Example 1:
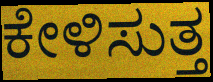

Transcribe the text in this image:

ಕೇಳಿಸುತ್ತ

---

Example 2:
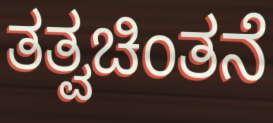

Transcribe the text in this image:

ತತ್ವಚಿಂತನೆ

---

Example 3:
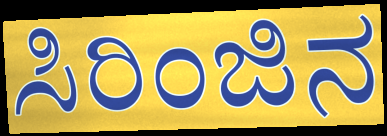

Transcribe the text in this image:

ಸಿರಿಂಜಿನ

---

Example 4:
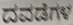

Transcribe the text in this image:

ದವಡೆಗಳ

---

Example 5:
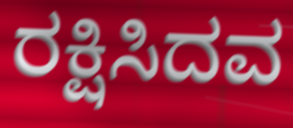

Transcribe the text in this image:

ರಕ್ಷಿಸಿದವ